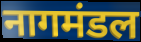
नागमंडल